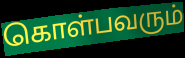
கொள்பவரும்